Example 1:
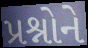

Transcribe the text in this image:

પ્રશ્નોને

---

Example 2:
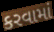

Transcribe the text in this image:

કરવામાં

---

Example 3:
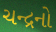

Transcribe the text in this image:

ચન્દ્રનો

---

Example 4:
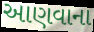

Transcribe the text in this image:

આણવાના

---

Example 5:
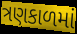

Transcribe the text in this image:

ત્રણકાળમાં